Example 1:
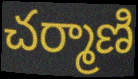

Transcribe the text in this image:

చర్మాణి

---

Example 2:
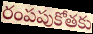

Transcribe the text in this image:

రంపపుకోతకు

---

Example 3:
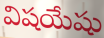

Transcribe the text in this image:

విషయేషు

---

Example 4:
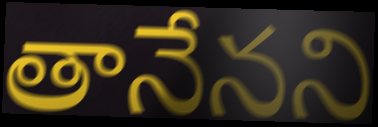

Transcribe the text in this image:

తానేనని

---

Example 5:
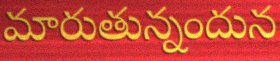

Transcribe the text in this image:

మారుతున్నందున